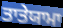
ਤਾਤੇਯਾਮਾ